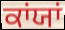
ਕਾਂਯਾਂ